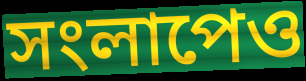
সংলাপেও